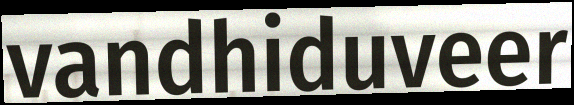
vandhiduveer